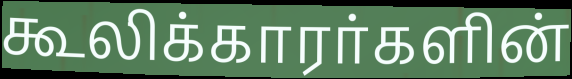
கூலிக்காரர்களின்